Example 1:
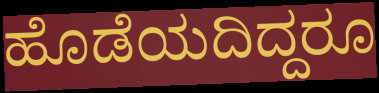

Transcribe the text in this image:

ಹೊಡೆಯದಿದ್ದರೂ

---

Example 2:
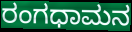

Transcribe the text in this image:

ರಂಗಧಾಮನ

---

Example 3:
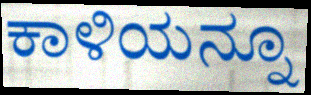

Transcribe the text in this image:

ಕಾಳಿಯನ್ನೂ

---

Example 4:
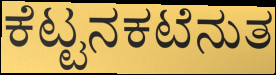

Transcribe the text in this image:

ಕೆಟ್ಟನಕಟೆನುತ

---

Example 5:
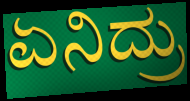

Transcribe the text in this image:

ಏನಿದ್ರು